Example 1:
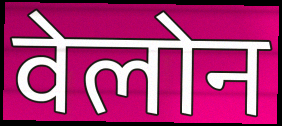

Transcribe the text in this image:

वेलोन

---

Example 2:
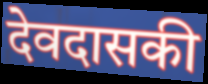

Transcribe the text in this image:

देवदासकी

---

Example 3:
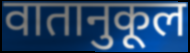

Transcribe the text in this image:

वातानुकूल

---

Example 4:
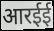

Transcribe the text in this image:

आरईई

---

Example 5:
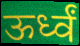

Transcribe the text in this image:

ऊर्ध्वं